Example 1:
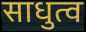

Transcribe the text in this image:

साधुत्व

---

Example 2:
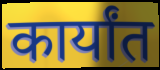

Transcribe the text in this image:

कार्यांत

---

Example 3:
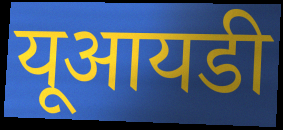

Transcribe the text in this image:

यूआयडी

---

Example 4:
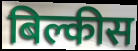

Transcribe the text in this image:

बिल्कीस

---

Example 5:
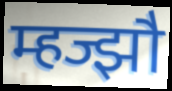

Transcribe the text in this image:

म्हज्झौ